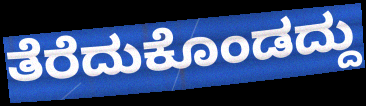
ತೆರೆದುಕೊಂಡದ್ದು